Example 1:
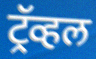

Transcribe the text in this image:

ट्रॅव्हल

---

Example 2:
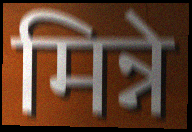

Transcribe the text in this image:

मिन्ने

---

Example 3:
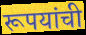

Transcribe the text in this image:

रूपयांची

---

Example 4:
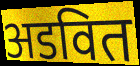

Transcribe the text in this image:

अडवित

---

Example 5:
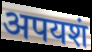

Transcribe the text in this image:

अपयशं